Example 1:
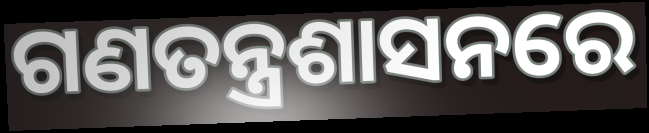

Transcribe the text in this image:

ଗଣତନ୍ତ୍ରଶାସନରେ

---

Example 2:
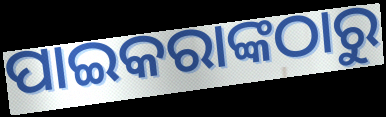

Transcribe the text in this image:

ପାଇକରାଙ୍କଠାରୁ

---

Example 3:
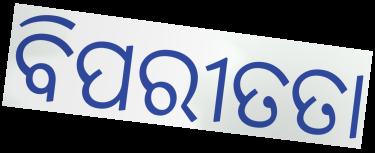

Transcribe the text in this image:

ବିପରୀତତା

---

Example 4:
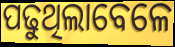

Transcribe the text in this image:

ପଢୁଥିଲାବେଳେ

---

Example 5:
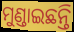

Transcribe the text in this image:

ମୁଣ୍ଡାଇଛନ୍ତି